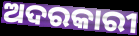
ଅଦରକାରୀ